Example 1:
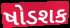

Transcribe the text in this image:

ષોડશક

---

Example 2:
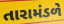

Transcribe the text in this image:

તારામંડળે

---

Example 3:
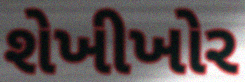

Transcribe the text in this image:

શેખીખોર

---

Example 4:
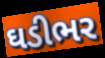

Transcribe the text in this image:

ઘડીભર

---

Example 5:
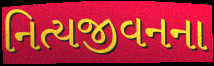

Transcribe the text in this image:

નિત્યજીવનના